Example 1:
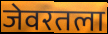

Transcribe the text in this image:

जेवरतला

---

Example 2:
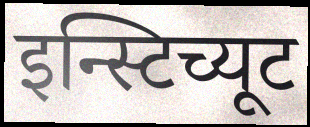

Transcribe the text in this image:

इन्स्टिच्यूट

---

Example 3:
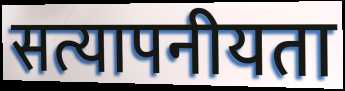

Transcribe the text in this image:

सत्यापनीयता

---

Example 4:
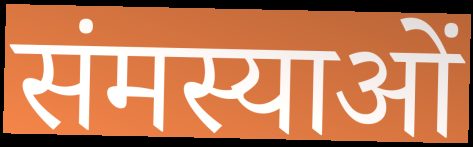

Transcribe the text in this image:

संमस्याओं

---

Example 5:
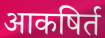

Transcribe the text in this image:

आकषिर्त